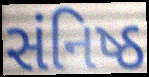
સંનિષ્ઠ